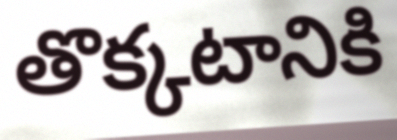
తొక్కటానికి